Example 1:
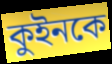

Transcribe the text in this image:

কুইনকে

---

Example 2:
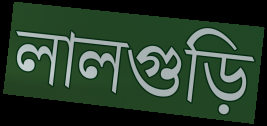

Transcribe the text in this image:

লালগুড়ি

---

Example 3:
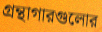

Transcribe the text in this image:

গ্রন্থাগারগুলোর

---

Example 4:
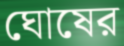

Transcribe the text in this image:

ঘোষের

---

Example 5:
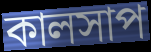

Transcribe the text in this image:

কালসাপ